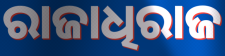
ରାଜାଧିରାଜ